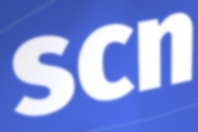
scn